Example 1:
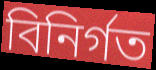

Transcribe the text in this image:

বিনির্গত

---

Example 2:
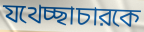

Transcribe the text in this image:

যথেচ্ছাচারকে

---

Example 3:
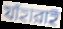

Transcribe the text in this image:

যাঁহারাই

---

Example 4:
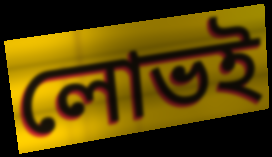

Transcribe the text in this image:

লোভই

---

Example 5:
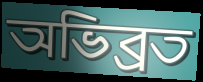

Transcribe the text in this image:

অভিব্রত